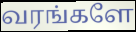
வரங்களே